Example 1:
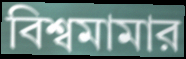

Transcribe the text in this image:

বিশ্বমামার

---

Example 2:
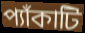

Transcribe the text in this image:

প্যাঁকাটি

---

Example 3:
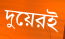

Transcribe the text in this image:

দুয়েরই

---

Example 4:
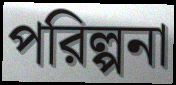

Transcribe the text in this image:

পরিল্পনা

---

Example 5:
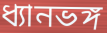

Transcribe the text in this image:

ধ্যানভঙ্গ